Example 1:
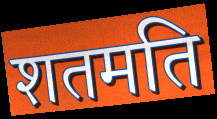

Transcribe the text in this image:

शतमति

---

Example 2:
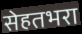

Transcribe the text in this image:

सेहतभरा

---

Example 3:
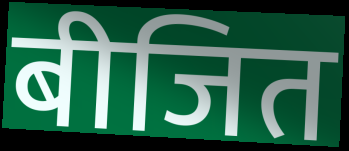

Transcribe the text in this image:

बीजित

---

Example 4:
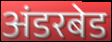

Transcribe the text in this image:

अंडरबेड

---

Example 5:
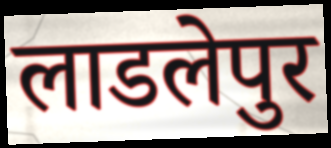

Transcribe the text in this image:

लाडलेपुर